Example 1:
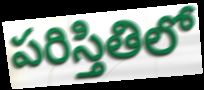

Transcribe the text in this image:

పరిస్తితిలో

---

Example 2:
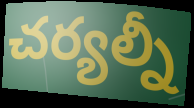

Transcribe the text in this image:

చర్యల్నీ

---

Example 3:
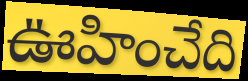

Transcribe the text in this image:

ఊహించేది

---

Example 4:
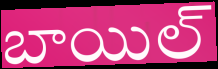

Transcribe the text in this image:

బాయిల్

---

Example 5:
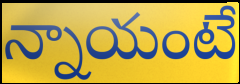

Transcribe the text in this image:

న్నాయంటే